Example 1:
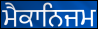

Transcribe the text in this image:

ਮੈਕਾਨਿਜਮ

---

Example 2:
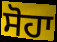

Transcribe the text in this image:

ਸੋਹਾ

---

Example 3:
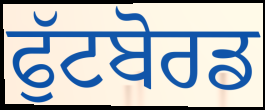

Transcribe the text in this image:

ਫੁੱਟਬੋਰਡ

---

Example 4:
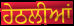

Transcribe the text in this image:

ਹੇਠਲੀਆਂ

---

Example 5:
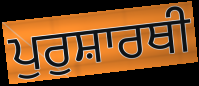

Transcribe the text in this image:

ਪੁਰੁਸ਼ਾਰਥੀ